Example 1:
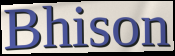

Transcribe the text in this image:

Bhison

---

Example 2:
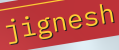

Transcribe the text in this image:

jignesh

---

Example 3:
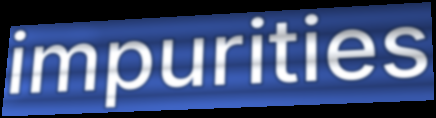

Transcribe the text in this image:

impurities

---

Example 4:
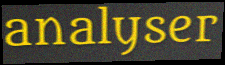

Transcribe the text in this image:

analyser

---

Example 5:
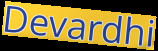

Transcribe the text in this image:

Devardhi